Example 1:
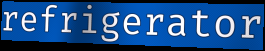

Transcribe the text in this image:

refrigerator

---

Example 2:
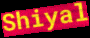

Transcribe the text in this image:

Shiyal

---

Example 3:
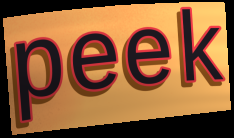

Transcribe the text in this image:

peek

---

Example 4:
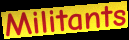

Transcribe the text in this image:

Militants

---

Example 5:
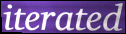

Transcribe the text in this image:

iterated